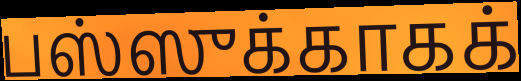
பஸ்ஸுக்காகக்